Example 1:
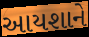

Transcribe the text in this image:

આયશાને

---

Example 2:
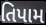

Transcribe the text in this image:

તિપામ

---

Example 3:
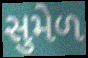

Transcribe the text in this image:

સુમેળ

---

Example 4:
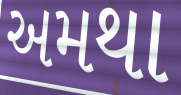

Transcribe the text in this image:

અમથા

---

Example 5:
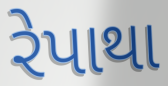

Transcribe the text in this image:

રેપાથા